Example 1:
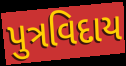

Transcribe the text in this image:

પુત્રવિદાય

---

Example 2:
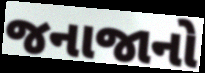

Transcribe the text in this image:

જનાજાનો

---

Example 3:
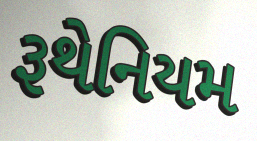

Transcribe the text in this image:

રૂથેનિયમ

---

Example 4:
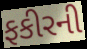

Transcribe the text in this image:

ફકીરની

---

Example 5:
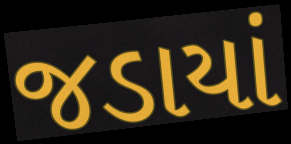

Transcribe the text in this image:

જડાયાં